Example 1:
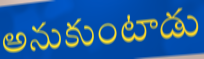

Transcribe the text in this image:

అనుకుంటాడు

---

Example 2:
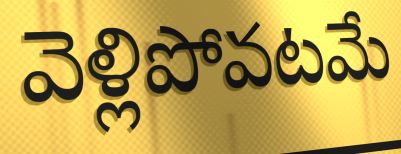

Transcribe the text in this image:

వెళ్లిపోవటమే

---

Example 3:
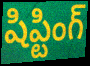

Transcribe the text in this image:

షిప్టింగ్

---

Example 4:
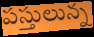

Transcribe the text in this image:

పస్తులున్న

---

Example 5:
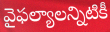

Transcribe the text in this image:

వైఫల్యాలన్నిటికీ